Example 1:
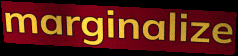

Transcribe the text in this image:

marginalize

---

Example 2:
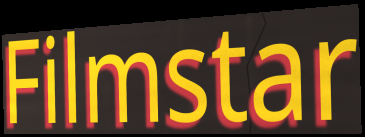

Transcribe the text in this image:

Filmstar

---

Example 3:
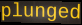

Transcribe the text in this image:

plunged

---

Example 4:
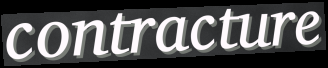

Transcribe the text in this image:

contracture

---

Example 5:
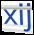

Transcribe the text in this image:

xij